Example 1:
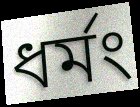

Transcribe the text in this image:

ধর্মং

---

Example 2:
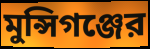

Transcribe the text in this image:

মুন্সিগঞ্জের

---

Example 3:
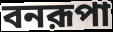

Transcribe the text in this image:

বনরূপা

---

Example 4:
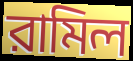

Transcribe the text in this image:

রামিল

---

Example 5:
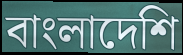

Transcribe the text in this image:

বাংলাদেশি